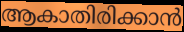
ആകാതിരിക്കാൻ